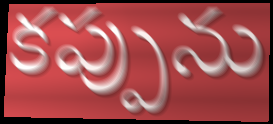
కప్పును